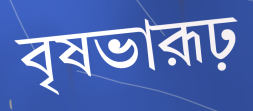
বৃষভারূঢ়